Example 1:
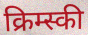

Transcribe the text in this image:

क्रिम्स्की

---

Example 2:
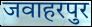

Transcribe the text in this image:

जवाहरपुर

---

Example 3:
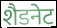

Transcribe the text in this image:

शैडनेट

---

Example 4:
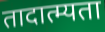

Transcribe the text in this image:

तादात्म्यता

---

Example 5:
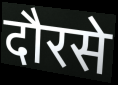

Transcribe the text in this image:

दौरसे